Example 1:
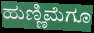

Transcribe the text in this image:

ಹುಣ್ಣಿಮೆಗೂ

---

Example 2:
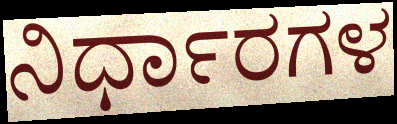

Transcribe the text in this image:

ನಿರ್ಧಾರಗಳ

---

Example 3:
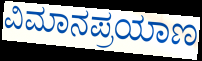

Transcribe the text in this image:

ವಿಮಾನಪ್ರಯಾಣ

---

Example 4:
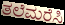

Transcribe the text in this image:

ತಲೆಮರೆಸಿ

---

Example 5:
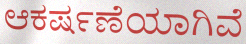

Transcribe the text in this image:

ಆಕರ್ಷಣೆಯಾಗಿವೆ